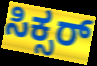
ಸಿಕ್ಸರ್